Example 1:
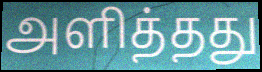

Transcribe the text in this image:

அளித்தது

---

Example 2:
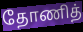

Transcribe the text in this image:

தோணித்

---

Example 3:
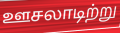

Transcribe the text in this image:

ஊசலாடிற்று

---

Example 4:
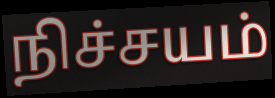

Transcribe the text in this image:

நிச்சயம்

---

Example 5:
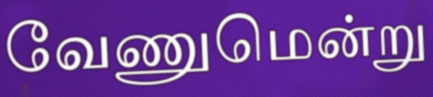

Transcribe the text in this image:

வேணுமென்று